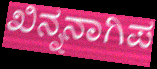
ಖಿನ್ನನಾಗಿಪ